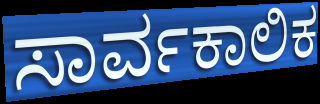
ಸಾರ್ವಕಾಲಿಕ